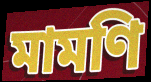
মামণি